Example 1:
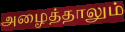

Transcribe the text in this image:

அழைத்தாலும்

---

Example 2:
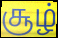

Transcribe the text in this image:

சூழ்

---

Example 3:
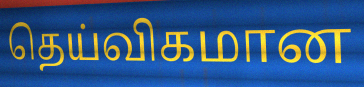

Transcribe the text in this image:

தெய்விகமான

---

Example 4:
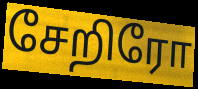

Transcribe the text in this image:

சேறிரோ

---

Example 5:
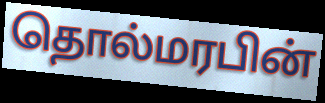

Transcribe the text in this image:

தொல்மரபின்